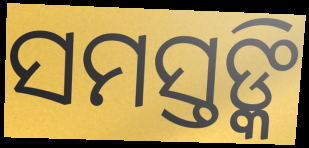
ସମସ୍ତଙ୍କି